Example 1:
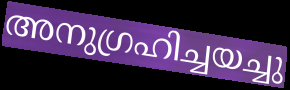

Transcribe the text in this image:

അനുഗ്രഹിച്ചയച്ചു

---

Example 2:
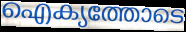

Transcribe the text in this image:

ഐക്യത്തോടെ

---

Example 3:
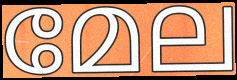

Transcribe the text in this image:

മേല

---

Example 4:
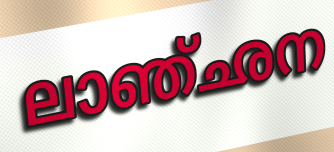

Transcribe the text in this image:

ലാഞ്ഛന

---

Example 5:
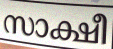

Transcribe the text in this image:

സാക്ഷീ